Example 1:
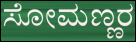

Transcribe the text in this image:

ಸೋಮಣ್ಣರ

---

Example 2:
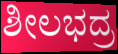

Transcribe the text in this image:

ಶೀಲಭದ್ರ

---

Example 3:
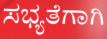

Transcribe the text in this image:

ಸಭ್ಯತೆಗಾಗಿ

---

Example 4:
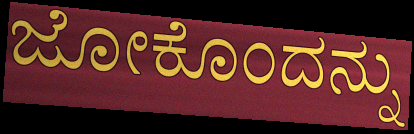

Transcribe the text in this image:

ಜೋಕೊಂದನ್ನು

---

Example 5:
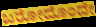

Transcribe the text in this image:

ಬರೋದೊಂದೇ